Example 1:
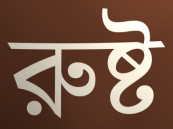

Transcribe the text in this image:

রুষ্ট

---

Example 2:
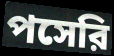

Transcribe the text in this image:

পসেরি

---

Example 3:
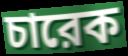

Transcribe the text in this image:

চারেক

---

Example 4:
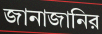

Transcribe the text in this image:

জানাজানির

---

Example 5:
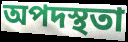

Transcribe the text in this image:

অপদস্থতা